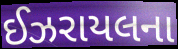
ઈઝરાયલના